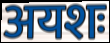
अयशः